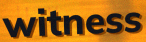
witness